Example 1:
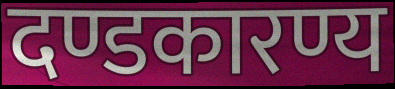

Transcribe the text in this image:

दण्डकारण्य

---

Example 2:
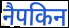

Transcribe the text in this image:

नैपकिन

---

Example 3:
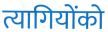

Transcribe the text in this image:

त्यागियोंको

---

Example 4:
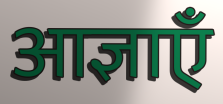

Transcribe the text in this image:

आज्ञाएँ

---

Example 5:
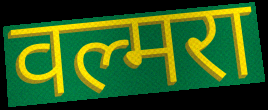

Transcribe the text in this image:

वल्मरा